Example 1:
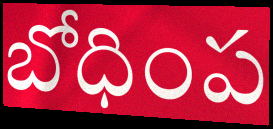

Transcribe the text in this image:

బోధింప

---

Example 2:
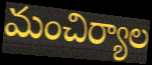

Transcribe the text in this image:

మంచిర్యాల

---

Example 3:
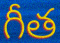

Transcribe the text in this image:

గీత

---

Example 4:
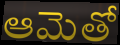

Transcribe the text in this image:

ఆమెతో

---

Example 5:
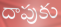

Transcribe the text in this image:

దాపుకు